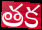
తక